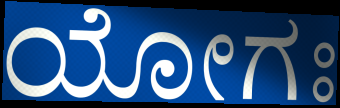
ಯೋಗಃ